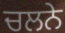
ਚਲਨੇ